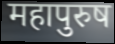
महापुरुष